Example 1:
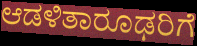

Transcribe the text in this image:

ಆಡಳಿತಾರೂಢರಿಗೆ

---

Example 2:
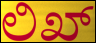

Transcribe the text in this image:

ಲಿಖ್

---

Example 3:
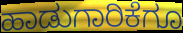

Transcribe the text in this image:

ಹಾಡುಗಾರಿಕೆಗೂ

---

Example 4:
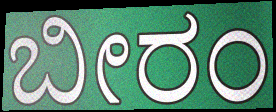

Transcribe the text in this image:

ಬೀರಂ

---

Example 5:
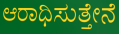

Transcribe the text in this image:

ಆರಾಧಿಸುತ್ತೇನೆ